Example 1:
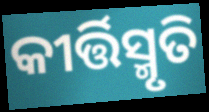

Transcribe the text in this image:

କୀର୍ତ୍ତିସ୍ମୃତି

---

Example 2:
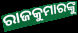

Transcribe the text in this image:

ରାଜକୁମାରଙ୍କୁ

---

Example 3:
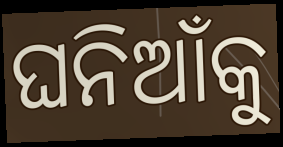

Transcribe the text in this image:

ଘନିଆଁକୁ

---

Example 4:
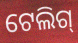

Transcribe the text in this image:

ଟେଲିଗ୍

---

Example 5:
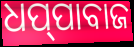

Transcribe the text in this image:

ଧପ୍‌ପାବାଜ